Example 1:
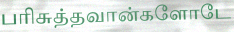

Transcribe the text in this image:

பரிசுத்தவான்களோடே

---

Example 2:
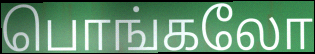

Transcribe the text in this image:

பொங்கலோ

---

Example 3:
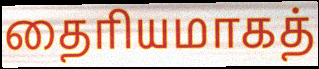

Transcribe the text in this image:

தைரியமாகத்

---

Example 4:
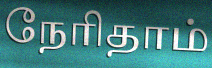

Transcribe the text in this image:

நேரிதாம்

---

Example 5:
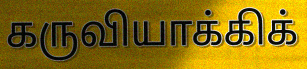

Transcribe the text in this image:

கருவியாக்கிக்